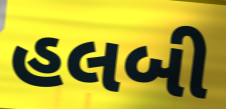
હલબી